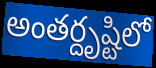
అంతర్దృష్టిలో